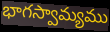
భాగస్వామ్యము